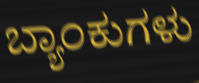
ಬ್ಯಾಂಕುಗಳು